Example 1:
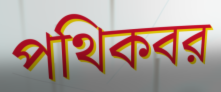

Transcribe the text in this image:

পথিকবর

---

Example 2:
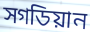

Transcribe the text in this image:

সগডিয়ান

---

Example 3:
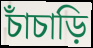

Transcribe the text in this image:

চাঁচাড়ি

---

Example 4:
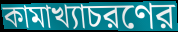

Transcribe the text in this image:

কামাখ্যাচরণের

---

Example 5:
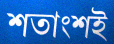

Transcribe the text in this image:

শতাংশই